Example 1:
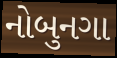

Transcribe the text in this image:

નોબુનગા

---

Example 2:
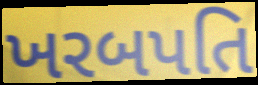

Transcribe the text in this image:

ખરબપતિ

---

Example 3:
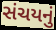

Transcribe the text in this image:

સંચયનું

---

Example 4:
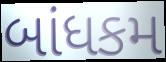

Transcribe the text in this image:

બાંધકમ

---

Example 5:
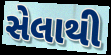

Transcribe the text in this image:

સેલાથી